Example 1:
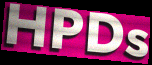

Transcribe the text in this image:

HPDs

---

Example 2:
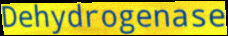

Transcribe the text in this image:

Dehydrogenase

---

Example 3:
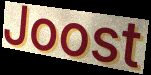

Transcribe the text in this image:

Joost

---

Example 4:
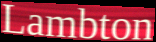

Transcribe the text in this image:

Lambton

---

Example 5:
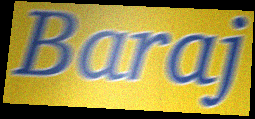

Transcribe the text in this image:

Baraj